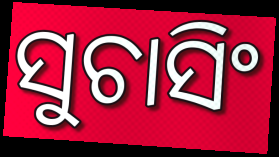
ସୁଚାସିଂ